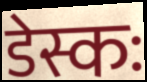
डेस्कः